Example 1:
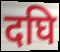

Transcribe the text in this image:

दघि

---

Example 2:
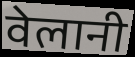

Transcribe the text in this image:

वेलानी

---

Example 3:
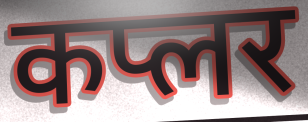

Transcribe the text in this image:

कप्लर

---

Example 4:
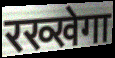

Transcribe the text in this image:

रख्खेगा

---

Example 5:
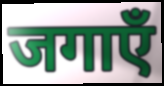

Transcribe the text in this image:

जगाएँ